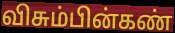
விசும்பின்கண்